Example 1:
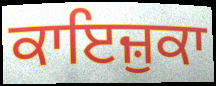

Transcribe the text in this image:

ਕਾਇਜ਼ੁਕਾ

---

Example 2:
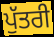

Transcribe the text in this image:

ਪੁੱਤਰੀ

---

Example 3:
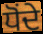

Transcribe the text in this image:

ਧੋਂਦੇ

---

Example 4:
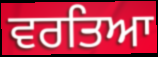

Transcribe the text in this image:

ਵਰਤਿਆ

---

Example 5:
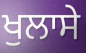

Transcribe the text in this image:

ਖੁਲਾਸੇ